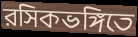
রসিকভঙ্গিতে